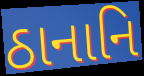
ઠાનાનિ